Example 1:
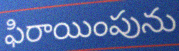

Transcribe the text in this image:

ఫిరాయింపును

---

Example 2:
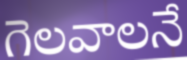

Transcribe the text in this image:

గెలవాలనే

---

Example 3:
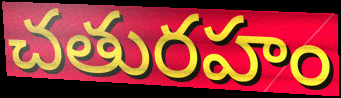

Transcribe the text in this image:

చతురహం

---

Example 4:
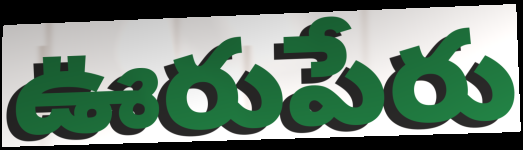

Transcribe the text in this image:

ఊరుపేరు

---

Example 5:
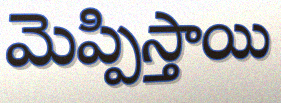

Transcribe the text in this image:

మెప్పిస్తాయి